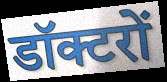
डॉक्टरों